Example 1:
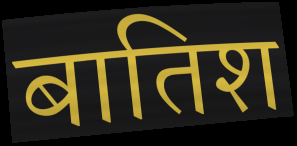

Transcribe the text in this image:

बातिश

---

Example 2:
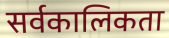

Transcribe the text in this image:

सर्वकालिकता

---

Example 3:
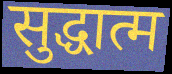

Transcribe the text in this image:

सुद्धात्म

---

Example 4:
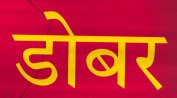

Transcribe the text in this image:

डोबर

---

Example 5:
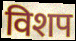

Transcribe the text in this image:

विशप